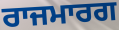
ਰਾਜਮਾਰਗ